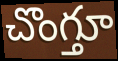
చొంగ్తూ